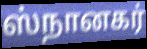
ஸ்நானகர்